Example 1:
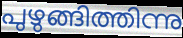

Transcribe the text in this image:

പുഴുങ്ങിത്തിന്നു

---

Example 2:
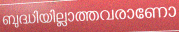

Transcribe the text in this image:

ബുദ്ധിയില്ലാത്തവരാണോ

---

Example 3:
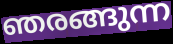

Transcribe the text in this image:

ഞരങ്ങുന്ന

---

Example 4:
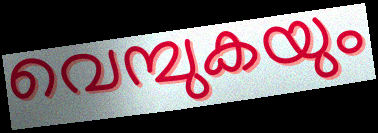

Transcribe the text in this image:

വെമ്പുകയും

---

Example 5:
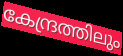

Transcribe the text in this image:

കേന്ദ്രത്തിലും